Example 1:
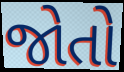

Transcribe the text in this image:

જોતો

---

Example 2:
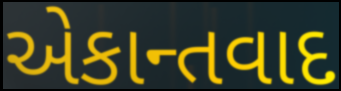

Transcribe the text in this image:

એકાન્તવાદ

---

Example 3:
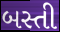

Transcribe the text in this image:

બસ્તી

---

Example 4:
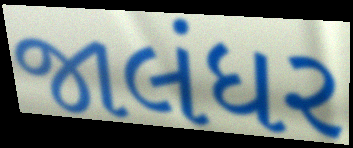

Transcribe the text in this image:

જાલંધર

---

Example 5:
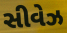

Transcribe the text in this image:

સીવેઝ